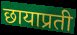
छायाप्रती